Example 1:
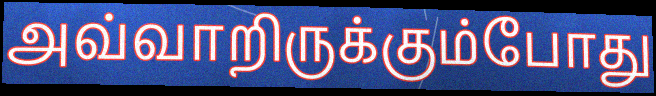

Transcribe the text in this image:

அவ்வாறிருக்கும்போது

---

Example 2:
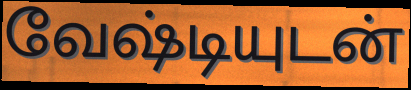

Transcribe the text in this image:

வேஷ்டியுடன்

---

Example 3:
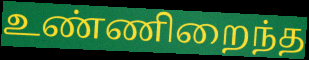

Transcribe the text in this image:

உண்ணிறைந்த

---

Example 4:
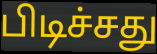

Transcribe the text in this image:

பிடிச்சது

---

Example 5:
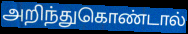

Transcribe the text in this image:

அறிந்துகொண்டால்